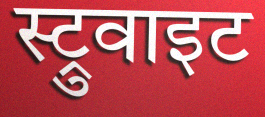
स्ट्रुवाइट